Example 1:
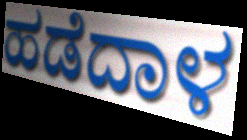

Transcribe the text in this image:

ಹಡೆದಾಳ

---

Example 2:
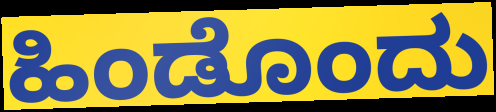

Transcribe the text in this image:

ಹಿಂಡೊಂದು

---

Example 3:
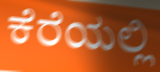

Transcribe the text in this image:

ಕೆರೆಯಲ್ಲಿ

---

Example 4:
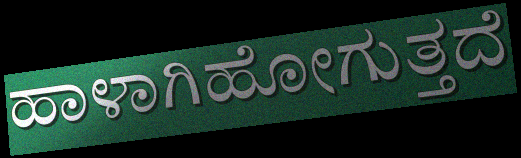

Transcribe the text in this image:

ಹಾಳಾಗಿಹೋಗುತ್ತದೆ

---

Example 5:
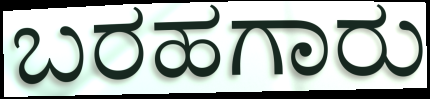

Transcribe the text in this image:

ಬರಹಗಾರು